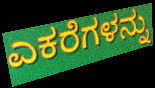
ಎಕರೆಗಳನ್ನು